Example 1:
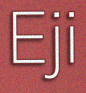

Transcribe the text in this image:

Eji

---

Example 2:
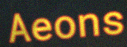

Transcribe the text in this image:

Aeons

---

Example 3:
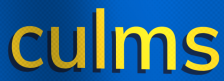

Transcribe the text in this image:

culms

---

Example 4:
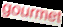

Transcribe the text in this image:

gourmet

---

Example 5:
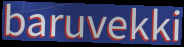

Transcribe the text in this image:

baruvekki